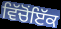
ਵਿੱਚੋਂਇੱਕ